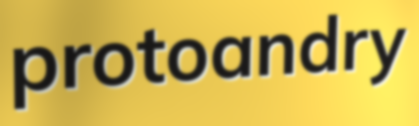
protoandry